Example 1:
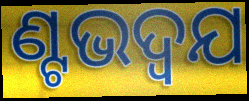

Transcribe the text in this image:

ଣ୍ଟଭଦ୍ଵଯ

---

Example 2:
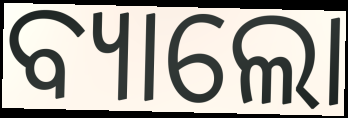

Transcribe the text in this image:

ବ୍ୟାଲୋ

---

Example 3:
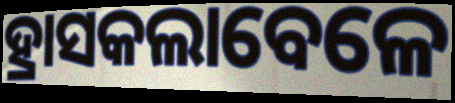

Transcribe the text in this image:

ହ୍ରାସକଲାବେଳେ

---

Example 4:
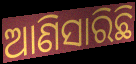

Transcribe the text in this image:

ଆଣିସାରିଛି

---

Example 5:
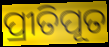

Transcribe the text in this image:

ପ୍ରୀତିପୂତ